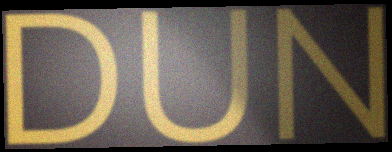
DUN